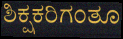
ಶಿಕ್ಷಕರಿಗಂತೂ